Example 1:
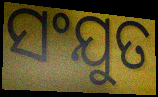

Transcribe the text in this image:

ସଂଯୁତ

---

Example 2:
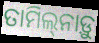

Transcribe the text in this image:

ତାମିଲ୍‌ନାଡ଼ୁ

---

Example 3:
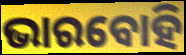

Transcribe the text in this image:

ଭାରବୋହି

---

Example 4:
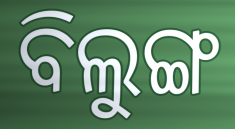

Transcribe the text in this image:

ବିଲୁଙ୍ଗ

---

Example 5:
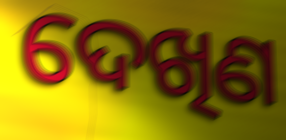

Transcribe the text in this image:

ଦେଖିଣ